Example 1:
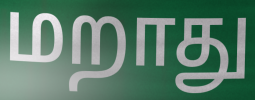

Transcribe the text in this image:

மறாது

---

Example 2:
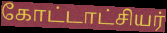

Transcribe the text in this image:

கோட்டாட்சியர்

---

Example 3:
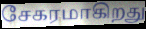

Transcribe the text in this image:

சேகரமாகிறது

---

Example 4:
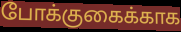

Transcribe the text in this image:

போக்குகைக்காக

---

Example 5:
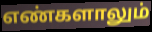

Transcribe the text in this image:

எண்களாலும்